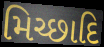
મિચ્છાદિ